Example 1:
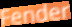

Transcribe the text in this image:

Fender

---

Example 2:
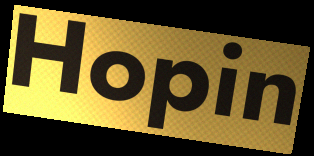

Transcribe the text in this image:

Hopin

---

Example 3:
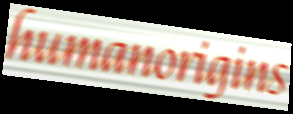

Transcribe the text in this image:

humanorigins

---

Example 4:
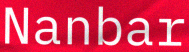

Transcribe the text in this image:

Nanbar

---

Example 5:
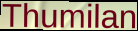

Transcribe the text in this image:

Thumilan